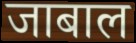
जाबाल